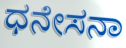
ಧನೇಸನಾ